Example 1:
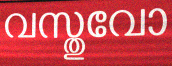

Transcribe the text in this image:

വസ്തുവോ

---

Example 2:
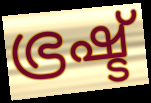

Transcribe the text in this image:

ഭ്രഷ്ട്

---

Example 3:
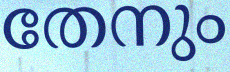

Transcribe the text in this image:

തേനും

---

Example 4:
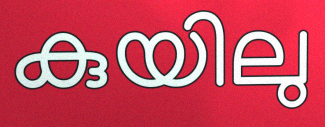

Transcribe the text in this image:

കുയിലു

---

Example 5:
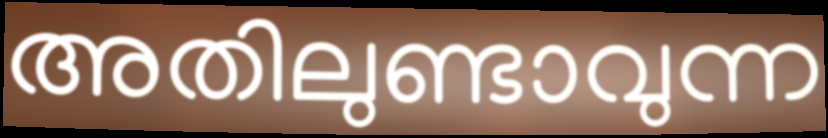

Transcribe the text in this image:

അതിലുണ്ടാവുന്ന